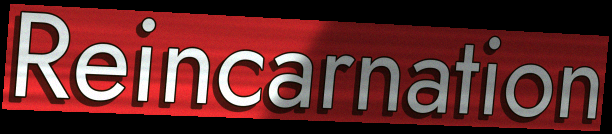
Reincarnation